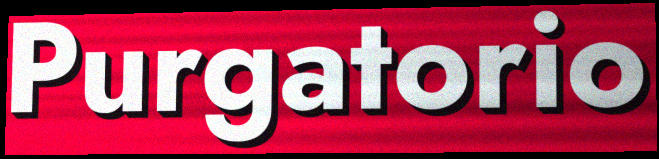
Purgatorio